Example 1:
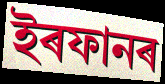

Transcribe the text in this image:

ইৰফানৰ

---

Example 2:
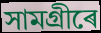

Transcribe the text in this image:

সামগ্ৰীৰে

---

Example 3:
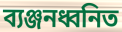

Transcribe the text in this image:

ব্যঞ্জনধ্বনিত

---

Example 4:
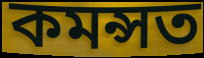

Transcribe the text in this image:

কমন্সত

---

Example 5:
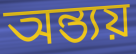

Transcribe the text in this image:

অন্ত্যয়